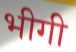
भीगी